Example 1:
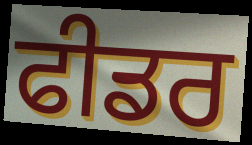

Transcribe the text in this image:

ਫੀਡਰ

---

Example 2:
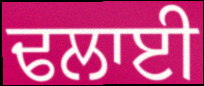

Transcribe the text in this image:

ਢਲਾਈ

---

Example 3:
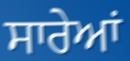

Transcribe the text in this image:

ਸਾਰੇਆਂ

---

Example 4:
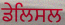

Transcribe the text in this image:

ਡੇਲਿਸਲ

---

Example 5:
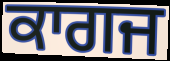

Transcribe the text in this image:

ਕਾਗਜ